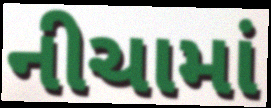
નીચામાં